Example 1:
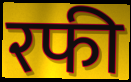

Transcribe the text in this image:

रफी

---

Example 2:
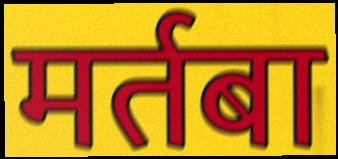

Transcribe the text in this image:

मर्तबा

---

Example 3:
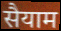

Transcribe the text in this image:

सैयाम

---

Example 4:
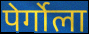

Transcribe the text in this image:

पेर्गोला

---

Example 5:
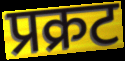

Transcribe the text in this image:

प्रक्रट